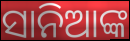
ସାନିଆଙ୍କ